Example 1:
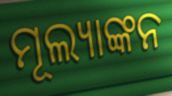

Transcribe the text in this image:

ମୂଲ୍ୟାଙ୍କନ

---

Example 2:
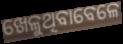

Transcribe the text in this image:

ଖେଳୁଥିବାବେଳେ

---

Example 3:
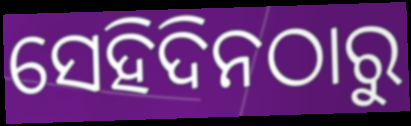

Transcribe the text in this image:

ସେହିଦିନଠାରୁ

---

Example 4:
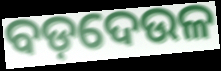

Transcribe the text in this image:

ବଡ଼ଦେଉଳ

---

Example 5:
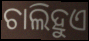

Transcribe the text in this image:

ଚାଲିହୁଏ